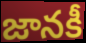
జానకీ